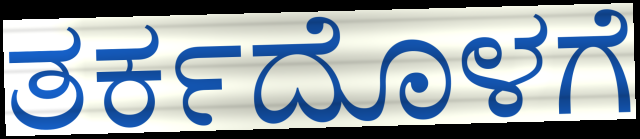
ತರ್ಕದೊಳಗೆ